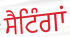
ਸੈਟਿੰਗਾਂ